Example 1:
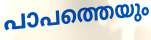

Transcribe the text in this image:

പാപത്തെയും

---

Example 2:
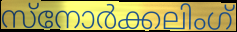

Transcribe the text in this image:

സ്നോർക്കലിംഗ്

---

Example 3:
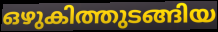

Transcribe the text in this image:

ഒഴുകിത്തുടങ്ങിയ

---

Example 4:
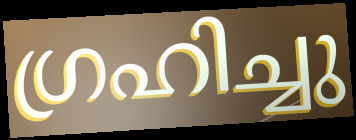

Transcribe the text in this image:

ഗ്രഹിച്ചു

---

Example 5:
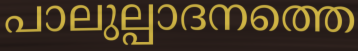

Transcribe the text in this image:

പാലുല്പാദനത്തെ